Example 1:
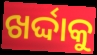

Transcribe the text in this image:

ଖର୍ଦ୍ଦାକୁ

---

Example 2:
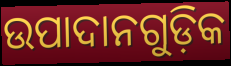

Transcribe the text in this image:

ଉପାଦାନଗୁଡ଼ିକ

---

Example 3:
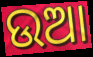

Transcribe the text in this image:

ଉଆ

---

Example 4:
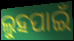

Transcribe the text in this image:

ଲୁହପାଇଁ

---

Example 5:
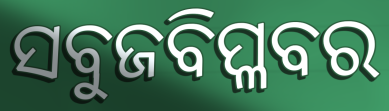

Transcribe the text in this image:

ସବୁଜବିପ୍ଳବର